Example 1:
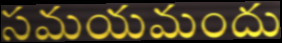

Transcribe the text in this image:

సమయమందు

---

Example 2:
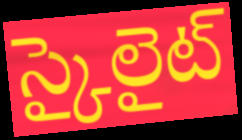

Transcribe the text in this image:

స్కైలైట్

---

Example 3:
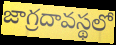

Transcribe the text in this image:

జాగ్రదావస్థలో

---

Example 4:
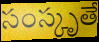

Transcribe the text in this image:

సంస్కృతే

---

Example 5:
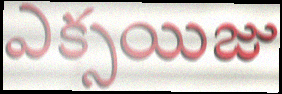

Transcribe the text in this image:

ఎక్సయిజు